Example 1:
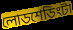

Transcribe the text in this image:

লোডশেডিংটা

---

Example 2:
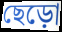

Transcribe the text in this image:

ছেড়ো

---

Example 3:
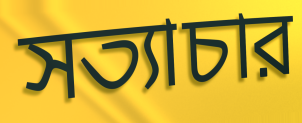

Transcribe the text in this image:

সত্যাচার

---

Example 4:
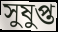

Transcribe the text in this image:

সুষুপ্ত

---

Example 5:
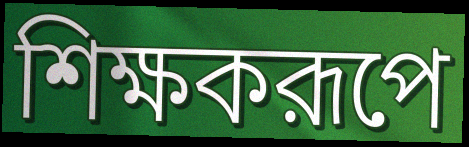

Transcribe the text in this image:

শিক্ষকরূপে